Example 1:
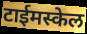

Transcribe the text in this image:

टाईमस्केल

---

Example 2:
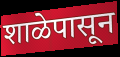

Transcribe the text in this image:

शाळेपासून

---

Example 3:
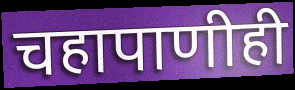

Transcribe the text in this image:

चहापाणीही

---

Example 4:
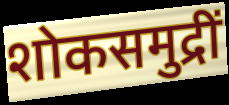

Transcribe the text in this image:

शोकसमुद्रीं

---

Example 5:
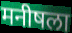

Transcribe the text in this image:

मनीषला